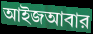
আইজআবার